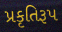
પ્રકૃતિરૂપ